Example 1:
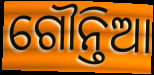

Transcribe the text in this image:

ଗୌନ୍ତିଆ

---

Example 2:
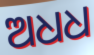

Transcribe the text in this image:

ଅଧଧ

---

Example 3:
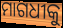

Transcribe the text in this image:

ମାଗଧୀକୁ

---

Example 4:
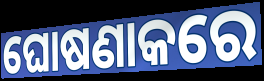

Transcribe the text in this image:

ଘୋଷଣାକରେ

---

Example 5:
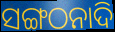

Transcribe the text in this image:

ସଙ୍ଗଠନାଦି